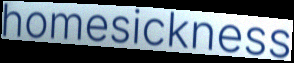
homesickness